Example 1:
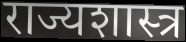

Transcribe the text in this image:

राज्यशास्त्र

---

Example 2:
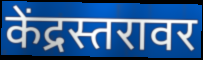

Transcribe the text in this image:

केंद्रस्तरावर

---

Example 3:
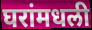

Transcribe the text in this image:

घरांमधली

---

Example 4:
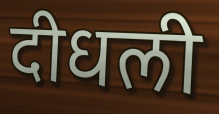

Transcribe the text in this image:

दीधली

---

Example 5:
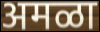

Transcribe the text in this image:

अमळा